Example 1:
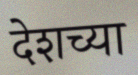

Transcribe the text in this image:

देशच्या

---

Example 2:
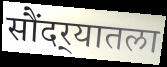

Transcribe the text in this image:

सौंदर्यातला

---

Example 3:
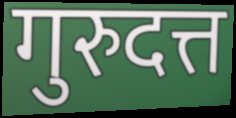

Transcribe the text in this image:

गुरुदत्त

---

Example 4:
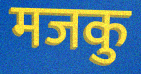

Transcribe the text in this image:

मजकु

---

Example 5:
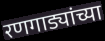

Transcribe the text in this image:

रणगाड्यांच्या